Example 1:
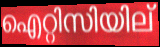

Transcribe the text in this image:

ഐറ്റിസിയില്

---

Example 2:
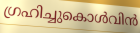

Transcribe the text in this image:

ഗ്രഹിച്ചുകൊൾവിൻ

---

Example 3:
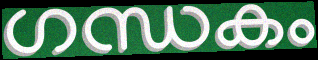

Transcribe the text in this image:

ഗന്ധകം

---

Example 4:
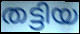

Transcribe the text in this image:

തട്ടിയ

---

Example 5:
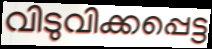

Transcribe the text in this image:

വിടുവിക്കപ്പെട്ട